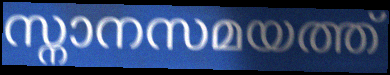
സ്നാനസമയത്ത്